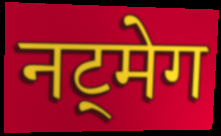
नट्मेग